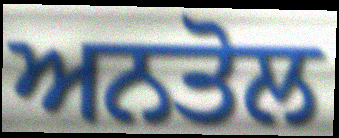
ਅਨਤੋਲ